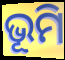
ଭୂମି